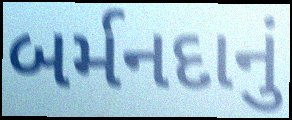
બર્મનદાનું